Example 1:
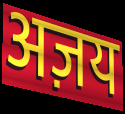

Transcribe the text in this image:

अज़य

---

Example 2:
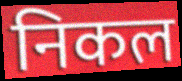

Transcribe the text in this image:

निकल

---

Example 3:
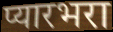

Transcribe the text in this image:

प्यारभरा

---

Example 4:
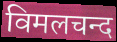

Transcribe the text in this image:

विमलचन्द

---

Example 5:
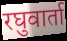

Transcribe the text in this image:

रघुवार्ता